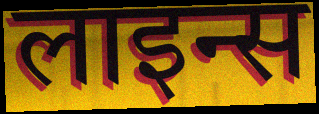
लाइन्स